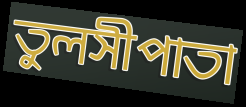
তুলসীপাতা